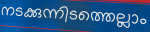
നടക്കുന്നിടത്തെല്ലാം